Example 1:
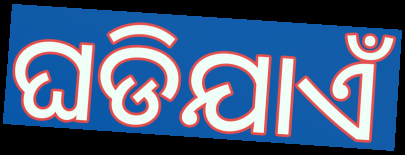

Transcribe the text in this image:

ଘଡିଯାଏଁ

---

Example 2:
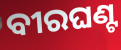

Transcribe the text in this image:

ବୀରଘଣ୍ଟ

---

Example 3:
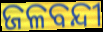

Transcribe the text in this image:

ଜଳବନ୍ଦୀ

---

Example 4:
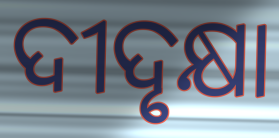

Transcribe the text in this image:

ଦୀଦୃକ୍ଷା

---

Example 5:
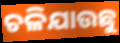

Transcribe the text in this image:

ଚଳିଯାଉଛୁ